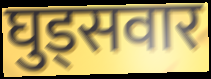
घुड्सवार